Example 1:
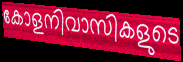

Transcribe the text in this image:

കോളനിവാസികളുടെ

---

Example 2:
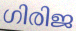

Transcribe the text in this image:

ഗിരിജ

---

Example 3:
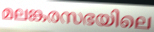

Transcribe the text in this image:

മലങ്കരസഭയിലെ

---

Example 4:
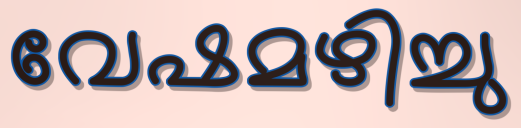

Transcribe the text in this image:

വേഷമഴിച്ചു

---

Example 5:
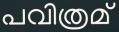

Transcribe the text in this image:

പവിത്രമ്